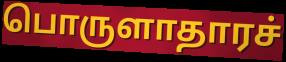
பொருளாதாரச்